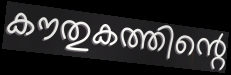
കൗതുകത്തിന്റെ